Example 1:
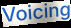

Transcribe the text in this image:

Voicing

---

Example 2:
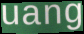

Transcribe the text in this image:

uang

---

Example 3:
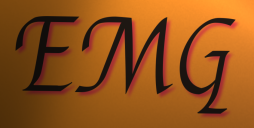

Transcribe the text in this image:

EMG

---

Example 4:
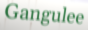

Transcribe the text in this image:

Gangulee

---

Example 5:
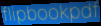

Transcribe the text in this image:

flipbookpdf